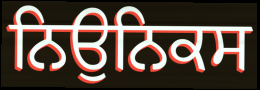
ਨਿਉਨਿਕਸ